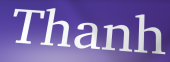
Thanh